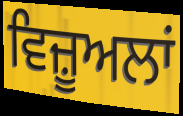
ਵਿਜ਼ੂਅਲਾਂ